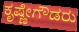
ಕೃಷ್ಣೇಗೌಡರು